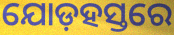
ଯୋଡ଼ହସ୍ତରେ